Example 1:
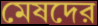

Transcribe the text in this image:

মেষদের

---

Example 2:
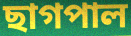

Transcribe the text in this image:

ছাগপাল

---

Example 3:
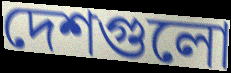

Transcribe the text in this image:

দেশগুলো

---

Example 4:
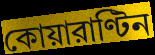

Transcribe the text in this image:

কোয়ারাণ্টিন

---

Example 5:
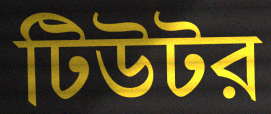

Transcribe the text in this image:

টিউটর